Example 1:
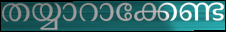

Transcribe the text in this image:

തയ്യാറാക്കേണ്ട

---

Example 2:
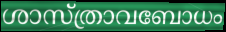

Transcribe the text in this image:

ശാസ്ത്രാവബോധം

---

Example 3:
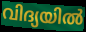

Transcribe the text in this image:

വിദ്യയിൽ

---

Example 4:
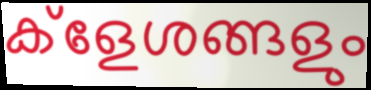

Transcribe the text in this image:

ക്ളേശങ്ങളും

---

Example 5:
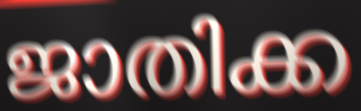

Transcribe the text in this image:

ജാതിക്ക